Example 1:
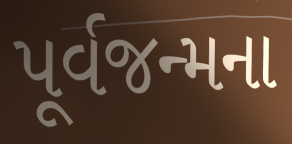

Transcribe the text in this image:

પૂર્વજન્મના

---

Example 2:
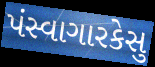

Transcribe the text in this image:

પંસ્વાગારકેસુ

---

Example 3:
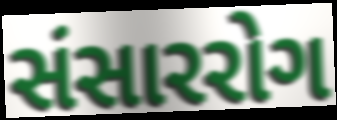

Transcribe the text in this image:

સંસારરોગ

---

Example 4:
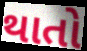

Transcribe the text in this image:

થાતો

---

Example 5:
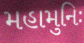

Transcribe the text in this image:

મહામુનિઃ